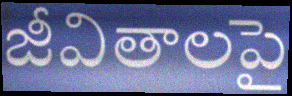
జీవితాలపై